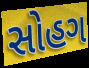
સોહગ